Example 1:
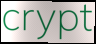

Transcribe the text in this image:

crypt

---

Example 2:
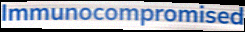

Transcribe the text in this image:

Immunocompromised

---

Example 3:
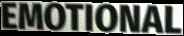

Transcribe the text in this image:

EMOTIONAL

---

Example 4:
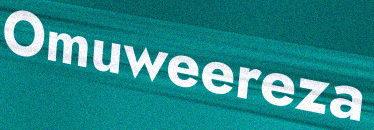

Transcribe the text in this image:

Omuweereza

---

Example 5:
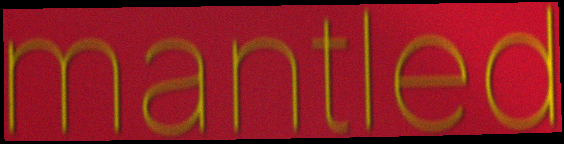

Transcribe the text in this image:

mantled